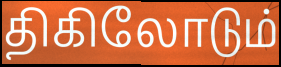
திகிலோடும்